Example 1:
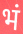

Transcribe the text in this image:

भं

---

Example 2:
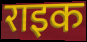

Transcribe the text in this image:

राइक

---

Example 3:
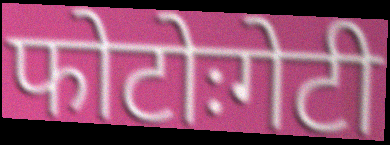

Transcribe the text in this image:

फोटोःगेटी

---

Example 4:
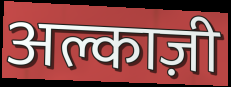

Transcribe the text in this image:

अल्काज़ी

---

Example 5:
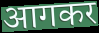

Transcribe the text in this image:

आगकर